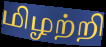
மிழற்றி